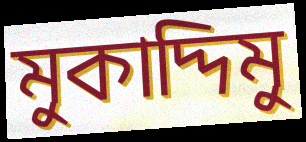
মুকাদ্দিমু